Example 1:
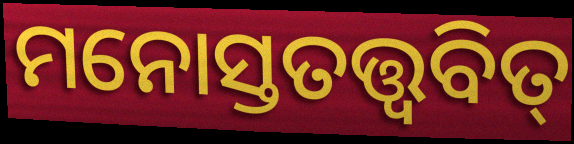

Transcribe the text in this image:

ମନୋସ୍ତତତ୍ତ୍ୱବିତ୍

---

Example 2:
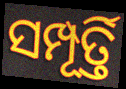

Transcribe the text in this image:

ସମ୍ପୂର୍ତ୍ତି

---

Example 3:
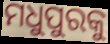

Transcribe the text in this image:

ମଧୁପୁରକୁ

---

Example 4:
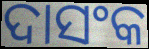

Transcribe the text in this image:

ଦାସଂକ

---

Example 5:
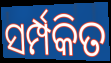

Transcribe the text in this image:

ସର୍ମ୍ପକିତ